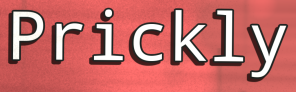
Prickly